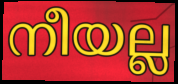
നീയല്ല